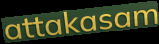
attakasam